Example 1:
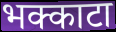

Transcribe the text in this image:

भक्काटा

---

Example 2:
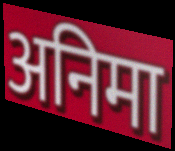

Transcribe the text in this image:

अनिमा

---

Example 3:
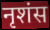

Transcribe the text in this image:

नृशंस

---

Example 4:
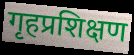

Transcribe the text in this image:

गृहप्रशिक्षण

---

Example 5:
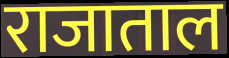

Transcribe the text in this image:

राजाताल